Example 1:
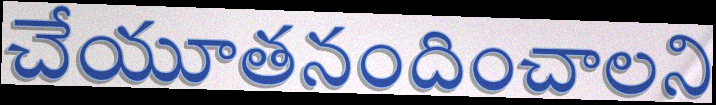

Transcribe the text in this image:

చేయూతనందించాలని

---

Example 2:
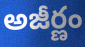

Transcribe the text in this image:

అజీర్ణం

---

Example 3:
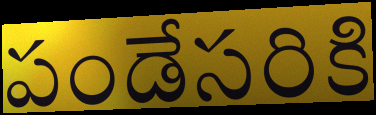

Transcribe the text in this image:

పండేసరికి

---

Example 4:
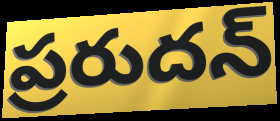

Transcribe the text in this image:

ప్రరుదన్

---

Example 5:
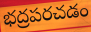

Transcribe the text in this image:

భద్రపరచడం